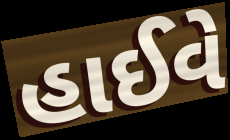
હાઈવે